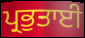
ਪ੍ਰਭੁਤਾਈ